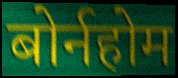
बोर्नहोम